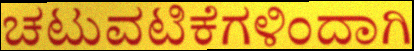
ಚಟುವಟಿಕೆಗಳಿಂದಾಗಿ